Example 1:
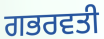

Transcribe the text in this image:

ਗਭਰਵਤੀ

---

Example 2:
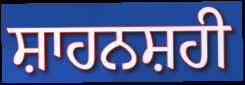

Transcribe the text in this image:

ਸ਼ਾਹਨਸ਼ਹੀ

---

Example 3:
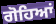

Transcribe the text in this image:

ਗੋਹਿਆਂ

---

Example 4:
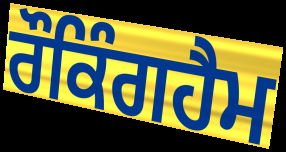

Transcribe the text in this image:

ਰੌਕਿੰਗਹੈਮ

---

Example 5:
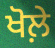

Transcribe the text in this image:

ਖੋਲ਼ੇ